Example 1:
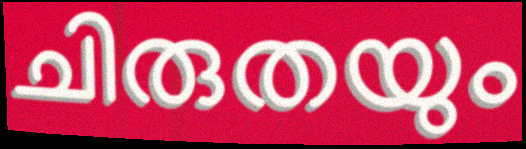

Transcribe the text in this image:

ചിരുതയും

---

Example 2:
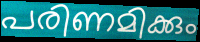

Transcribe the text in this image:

പരിണമിക്കും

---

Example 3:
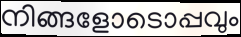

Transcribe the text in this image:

നിങ്ങളോടൊപ്പവും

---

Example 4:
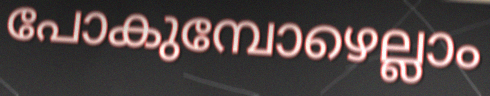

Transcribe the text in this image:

പോകുമ്പോഴെല്ലാം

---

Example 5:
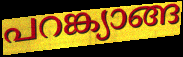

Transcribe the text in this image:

പറങ്ക്യാങ്ങ